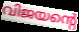
വിജയന്റെ